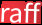
raff